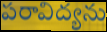
పరావిద్యను